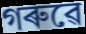
গৰুৱে